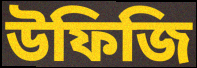
উফিজি